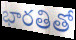
భారతితో